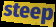
steep